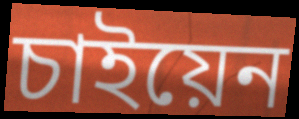
চাইয়েন